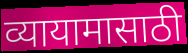
व्यायामासाठी